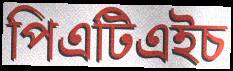
পিএটিএইচ